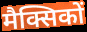
मैक्सिकों